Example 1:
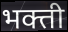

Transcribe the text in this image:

भक्ती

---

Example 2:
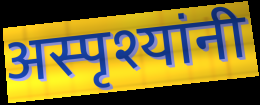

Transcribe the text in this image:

अस्पृश्यांनी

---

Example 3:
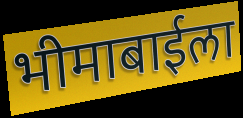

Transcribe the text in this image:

भीमाबाईला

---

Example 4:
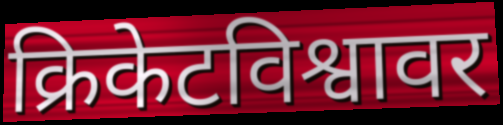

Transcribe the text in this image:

क्रिकेटविश्वावर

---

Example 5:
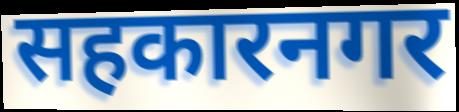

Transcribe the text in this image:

सहकारनगर